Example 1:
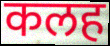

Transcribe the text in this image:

कलह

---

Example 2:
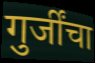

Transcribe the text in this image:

गुर्जींचा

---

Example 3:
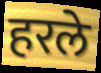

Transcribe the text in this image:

हरले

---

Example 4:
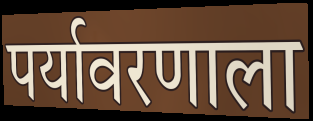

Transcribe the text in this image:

पर्यावरणाला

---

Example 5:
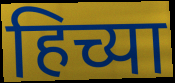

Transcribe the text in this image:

हिच्या